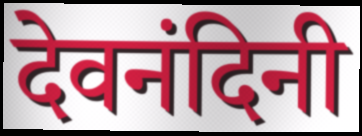
देवनंदिनी